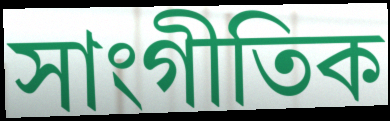
সাংগীতিক